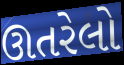
ઊતરેલો